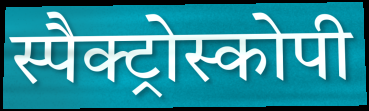
स्पैक्ट्रोस्कोपी